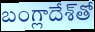
బంగ్లాదేశ్‌తో